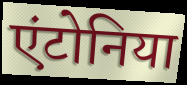
एंटोनिया